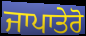
ਜਾਪਾਤੇਰੋ